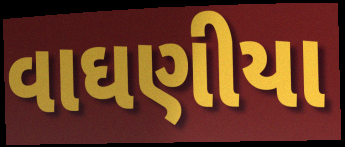
વાઘણીયા